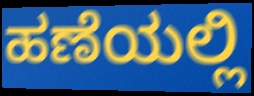
ಹಣೆಯಲ್ಲಿ